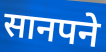
सानपने